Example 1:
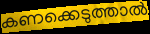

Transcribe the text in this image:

കണക്കെടുത്താൽ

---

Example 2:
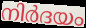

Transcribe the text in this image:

നിർദയം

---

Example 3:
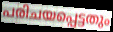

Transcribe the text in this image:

പരിചയപ്പെട്ടതും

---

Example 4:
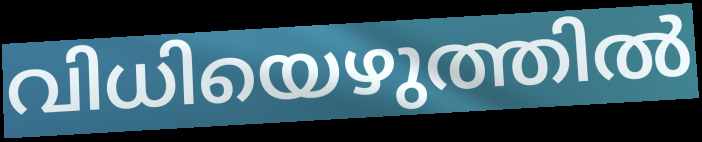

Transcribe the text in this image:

വിധിയെഴുത്തിൽ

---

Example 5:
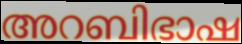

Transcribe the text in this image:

അറബിഭാഷ